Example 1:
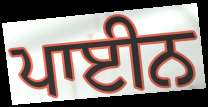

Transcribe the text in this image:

ਪਾਈਨ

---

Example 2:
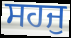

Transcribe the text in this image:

ਸਹਜੁ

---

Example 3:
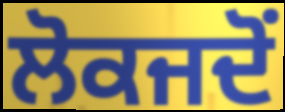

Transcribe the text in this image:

ਲੋਕਜਦੋਂ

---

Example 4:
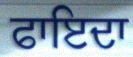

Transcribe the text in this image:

ਫਾਇਦਾ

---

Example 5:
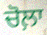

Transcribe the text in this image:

ਚੋਲ਼ਾ